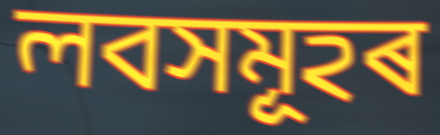
লবসমূহৰ